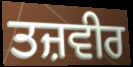
ਤਜ਼ਵੀਰ